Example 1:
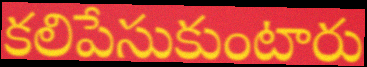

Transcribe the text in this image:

కలిపేసుకుంటారు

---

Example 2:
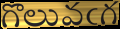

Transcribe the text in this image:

గొలువఁగ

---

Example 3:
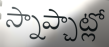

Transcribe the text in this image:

స్నాప్చాట్లో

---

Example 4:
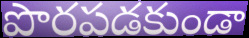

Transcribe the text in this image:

పొరపడకుండా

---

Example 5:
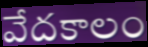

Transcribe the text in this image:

వేదకాలం